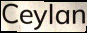
Ceylan